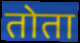
तोता